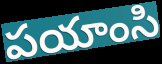
పయాంసి